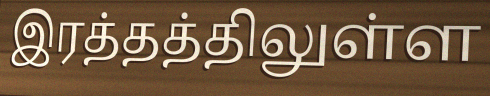
இரத்தத்திலுள்ள